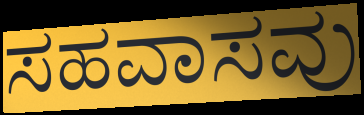
ಸಹವಾಸವು